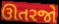
ઊતરજો